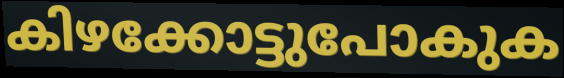
കിഴക്കോട്ടുപോകുക